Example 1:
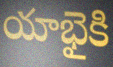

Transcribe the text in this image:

యాభైకి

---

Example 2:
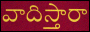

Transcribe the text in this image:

వాదిస్తారా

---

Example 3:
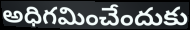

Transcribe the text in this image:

అధిగమించేందుకు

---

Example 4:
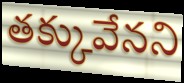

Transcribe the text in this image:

తక్కువేనని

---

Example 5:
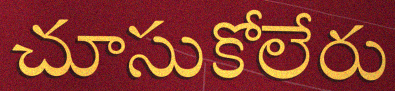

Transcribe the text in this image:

చూసుకోలేరు